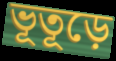
ভূতূড়ে